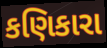
કણિકારા